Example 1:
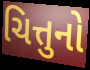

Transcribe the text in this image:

ચિત્તુનો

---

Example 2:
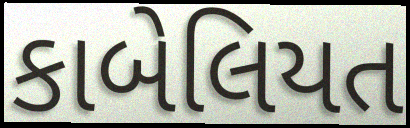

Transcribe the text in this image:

કાબેલિયત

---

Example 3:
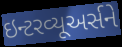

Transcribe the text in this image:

ઇન્ટરવ્યૂઅર્સને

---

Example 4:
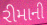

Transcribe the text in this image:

રીમાની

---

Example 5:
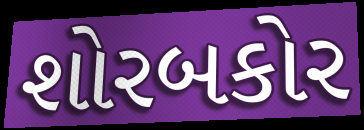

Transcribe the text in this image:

શોરબકોર